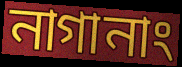
নাগানাং